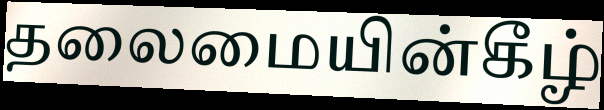
தலைமையின்கீழ்